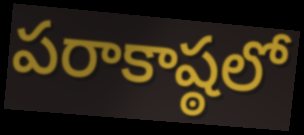
పరాకాష్ఠలో